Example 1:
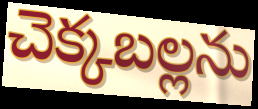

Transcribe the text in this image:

చెక్కబల్లను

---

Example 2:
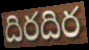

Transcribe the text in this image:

దిరదిర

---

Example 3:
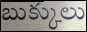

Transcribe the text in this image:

బుక్కులు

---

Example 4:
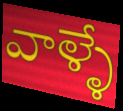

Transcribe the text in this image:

వాళ్ళే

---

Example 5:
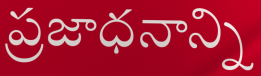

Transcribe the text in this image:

ప్రజాధనాన్ని